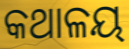
କଥାଳୟ